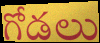
గోడలు